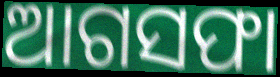
ଆଗସଫା